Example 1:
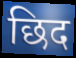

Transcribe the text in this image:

छिद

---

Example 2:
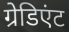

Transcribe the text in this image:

ग्रेडिएंट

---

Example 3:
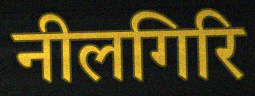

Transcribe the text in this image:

नीलगिरि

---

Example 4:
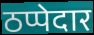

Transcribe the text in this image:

ठप्पेदार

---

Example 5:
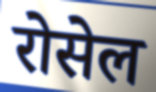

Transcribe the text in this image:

रोसेल